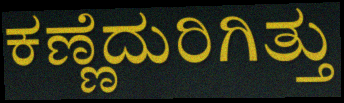
ಕಣ್ಣೆದುರಿಗಿತ್ತು